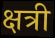
क्षत्री